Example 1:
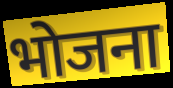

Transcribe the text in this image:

भोजना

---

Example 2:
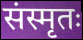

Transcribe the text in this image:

संस्मृतः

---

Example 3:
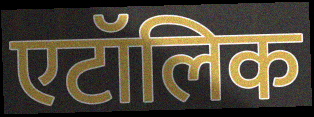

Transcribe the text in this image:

एटॉलिक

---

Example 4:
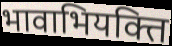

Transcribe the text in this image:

भावाभियक्ति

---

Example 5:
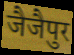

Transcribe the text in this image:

जैजैपुर